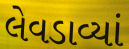
લેવડાવ્યાં